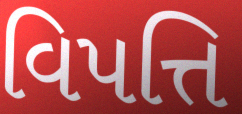
વિપત્તિ